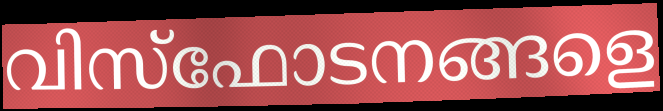
വിസ്ഫോടനങ്ങളെ